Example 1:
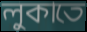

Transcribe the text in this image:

লুকাতে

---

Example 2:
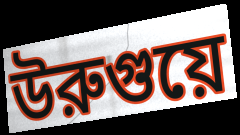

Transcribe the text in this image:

উরুগুয়ে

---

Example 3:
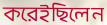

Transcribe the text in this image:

করেইছিলেন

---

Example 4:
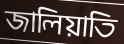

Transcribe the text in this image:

জালিয়াতি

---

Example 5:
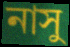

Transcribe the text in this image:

নাসু